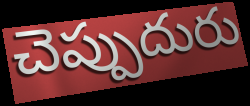
చెప్పుదురు